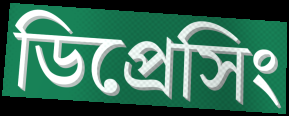
ডিপ্রেসিং